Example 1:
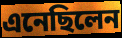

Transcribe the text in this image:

এনেছিলেন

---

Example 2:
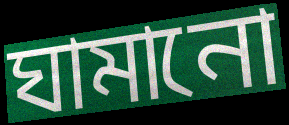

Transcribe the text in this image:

ঘামানো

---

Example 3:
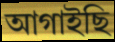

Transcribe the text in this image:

আগাইছি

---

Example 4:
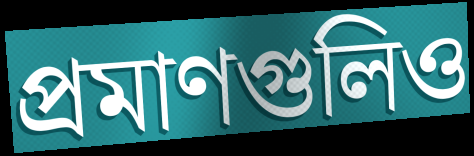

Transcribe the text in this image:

প্রমাণগুলিও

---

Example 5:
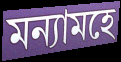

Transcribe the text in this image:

মন্যামহে